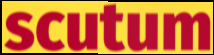
scutum